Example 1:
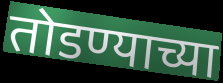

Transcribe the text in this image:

तोडण्याच्या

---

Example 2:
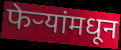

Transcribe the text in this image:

फेऱ्यांमधून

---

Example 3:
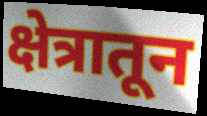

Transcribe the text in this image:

क्षेत्रातून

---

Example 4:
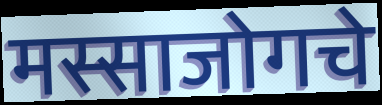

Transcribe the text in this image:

मस्साजोगचे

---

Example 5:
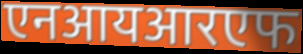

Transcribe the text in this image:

एनआयआरएफ